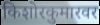
किशोरकुमारवर